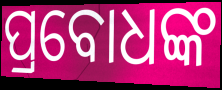
ପ୍ରବୋଧଙ୍କ